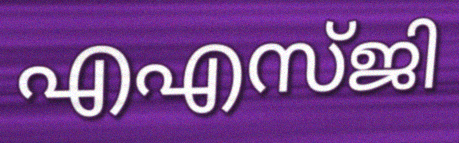
എഎസ്ജി